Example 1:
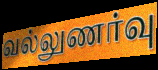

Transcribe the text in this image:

வல்லுணர்வு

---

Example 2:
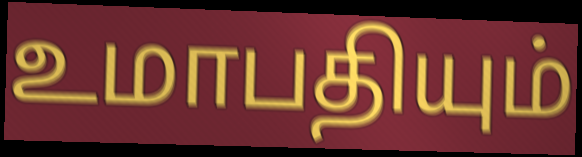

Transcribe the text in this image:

உமாபதியும்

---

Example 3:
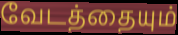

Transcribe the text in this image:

வேடத்தையும்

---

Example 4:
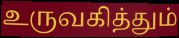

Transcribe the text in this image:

உருவகித்தும்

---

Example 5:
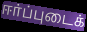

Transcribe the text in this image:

ஈர்ப்புடைக்